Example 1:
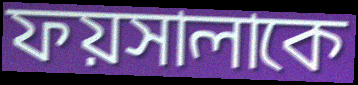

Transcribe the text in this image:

ফয়সালাকে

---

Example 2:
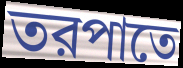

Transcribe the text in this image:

তরপাতে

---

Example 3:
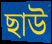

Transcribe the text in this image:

ছাউ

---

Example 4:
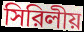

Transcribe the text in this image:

সিরিলীয়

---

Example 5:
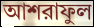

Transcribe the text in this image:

আশরাফুল